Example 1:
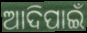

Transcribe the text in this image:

ଆଦିପାଇଁ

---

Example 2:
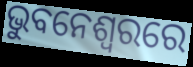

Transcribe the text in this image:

ଭୁବନେଶ୍ୱରରେ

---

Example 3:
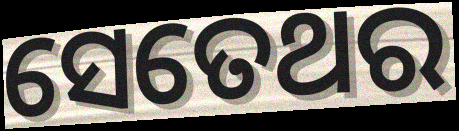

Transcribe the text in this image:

ସେତେଥର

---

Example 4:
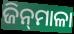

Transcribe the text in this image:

ଜିନ୍‌ମାଳା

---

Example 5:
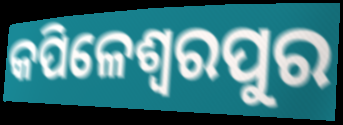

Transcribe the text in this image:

କପିଳେଶ୍ୱରପୁର